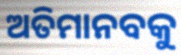
ଅତିମାନବକୁ